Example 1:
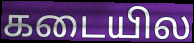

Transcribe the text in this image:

கடையில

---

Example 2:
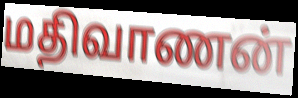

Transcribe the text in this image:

மதிவாணன்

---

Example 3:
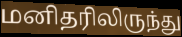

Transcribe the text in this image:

மனிதரிலிருந்து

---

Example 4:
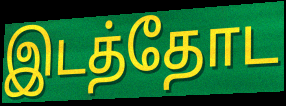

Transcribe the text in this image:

இடத்தோட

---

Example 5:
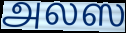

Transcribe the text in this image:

அலஸ